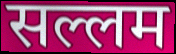
सल्‍लम